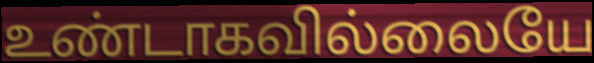
உண்டாகவில்லையே